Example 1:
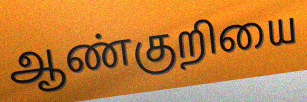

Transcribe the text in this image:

ஆண்குறியை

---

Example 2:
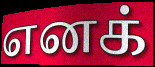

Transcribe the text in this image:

எனக்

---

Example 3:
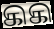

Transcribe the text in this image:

கிகி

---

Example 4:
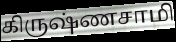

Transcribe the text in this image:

கிருஷ்ணசாமி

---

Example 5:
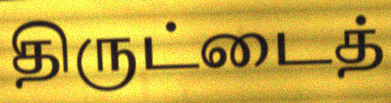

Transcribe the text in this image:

திருட்டைத்